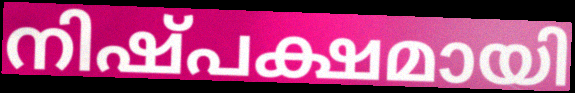
നിഷ്പക്ഷമായി